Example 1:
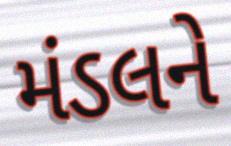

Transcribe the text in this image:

મંડલને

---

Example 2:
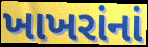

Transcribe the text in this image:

ખાખરાંનાં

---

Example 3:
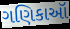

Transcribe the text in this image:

ગણિકાઑ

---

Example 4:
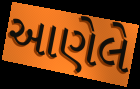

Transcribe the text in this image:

આણેલે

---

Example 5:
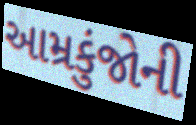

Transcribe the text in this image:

આમ્રકુંજોની